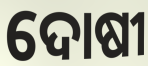
ଦୋଷୀ